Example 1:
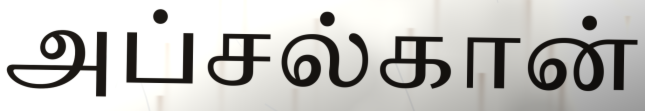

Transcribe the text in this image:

அப்சல்கான்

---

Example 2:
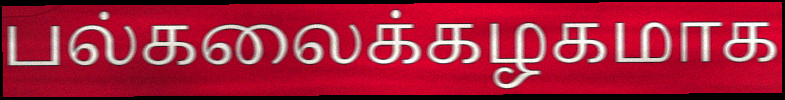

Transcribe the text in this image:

பல்கலைக்கழகமாக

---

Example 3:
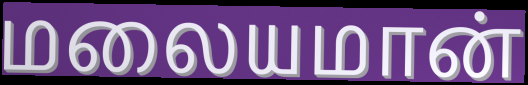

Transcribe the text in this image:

மலையமான்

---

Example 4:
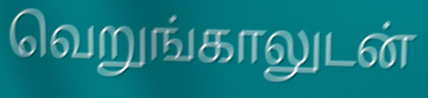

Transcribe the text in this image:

வெறுங்காலுடன்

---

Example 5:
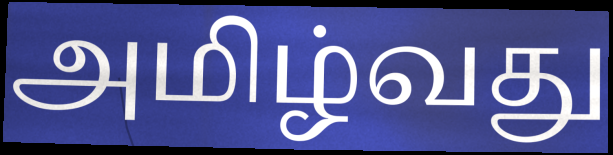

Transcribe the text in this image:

அமிழ்வது